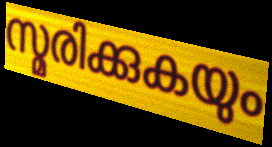
സ്മരിക്കുകയും